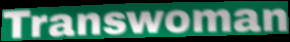
Transwoman